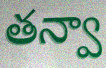
తన్వా